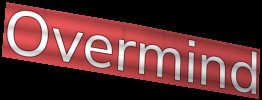
Overmind